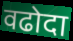
वढोदा